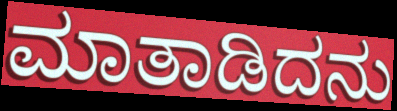
ಮಾತಾಡಿದನು